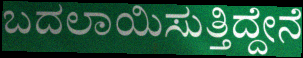
ಬದಲಾಯಿಸುತ್ತಿದ್ದೇನೆ